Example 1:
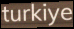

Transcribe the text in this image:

turkiye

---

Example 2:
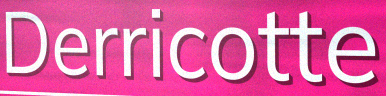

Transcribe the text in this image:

Derricotte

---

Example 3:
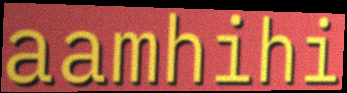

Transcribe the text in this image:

aamhihi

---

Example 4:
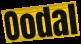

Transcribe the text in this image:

Oodal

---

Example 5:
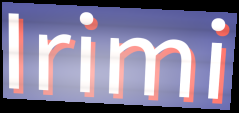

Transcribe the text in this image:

Irimi